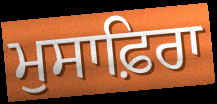
ਮੁਸਾਫ਼ਿਰਾ